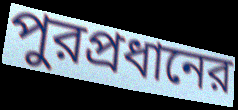
পুরপ্রধানের